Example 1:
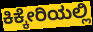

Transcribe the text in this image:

ಕಿಕ್ಕೇರಿಯಲ್ಲಿ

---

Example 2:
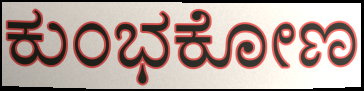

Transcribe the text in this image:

ಕುಂಭಕೋಣ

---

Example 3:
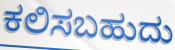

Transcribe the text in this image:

ಕಲಿಸಬಹುದು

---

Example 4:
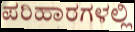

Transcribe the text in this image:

ಪರಿಹಾರಗಳಲ್ಲಿ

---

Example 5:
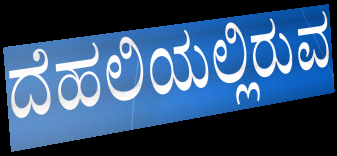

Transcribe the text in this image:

ದೆಹಲಿಯಲ್ಲಿರುವ